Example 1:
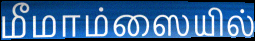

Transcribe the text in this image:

மீமாம்ஸையில்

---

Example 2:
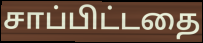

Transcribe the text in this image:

சாப்பிட்டதை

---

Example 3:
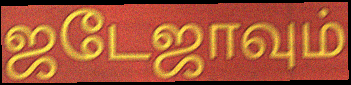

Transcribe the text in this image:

ஜடேஜாவும்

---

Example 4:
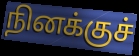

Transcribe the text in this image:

நினக்குச்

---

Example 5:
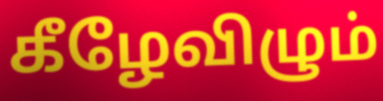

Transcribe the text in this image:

கீழேவிழும்